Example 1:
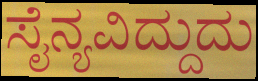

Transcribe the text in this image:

ಸೈನ್ಯವಿದ್ದುದು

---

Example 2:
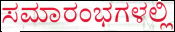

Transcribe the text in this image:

ಸಮಾರಂಭಗಳಲ್ಲಿ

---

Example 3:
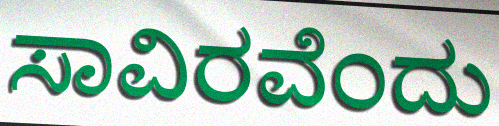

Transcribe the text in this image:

ಸಾವಿರವೆಂದು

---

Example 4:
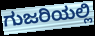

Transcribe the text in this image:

ಗುಜರಿಯಲ್ಲಿ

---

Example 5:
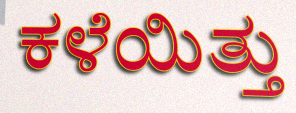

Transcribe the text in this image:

ಕಳೆಯಿತ್ತು